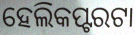
ହେଲିକପ୍ଟରଟା